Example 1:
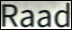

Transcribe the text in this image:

Raad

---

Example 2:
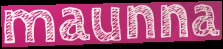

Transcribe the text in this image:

maunna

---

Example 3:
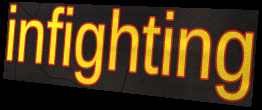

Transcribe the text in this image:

infighting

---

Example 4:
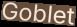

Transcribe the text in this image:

Goblet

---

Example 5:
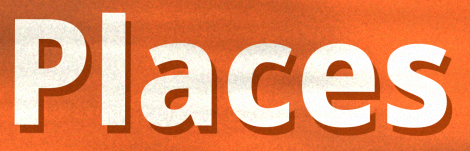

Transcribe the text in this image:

Places